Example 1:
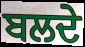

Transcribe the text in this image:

ਬਲਦੇ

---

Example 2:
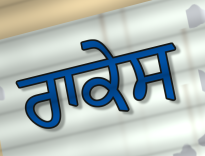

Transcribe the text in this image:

ਰਾਕੇਸ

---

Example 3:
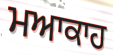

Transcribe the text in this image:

ਮਆਕਾਹ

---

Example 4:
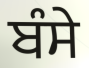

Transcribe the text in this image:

ਬੰਸੇ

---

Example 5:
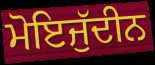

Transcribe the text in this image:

ਮੋਇਜੁੱਦੀਨ